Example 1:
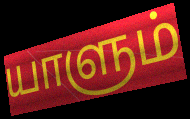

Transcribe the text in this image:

யாளும்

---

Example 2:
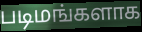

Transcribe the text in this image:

படிமங்களாக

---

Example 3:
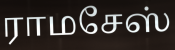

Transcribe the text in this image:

ராமசேஸ்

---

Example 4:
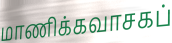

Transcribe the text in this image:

மாணிக்கவாசகப்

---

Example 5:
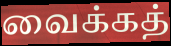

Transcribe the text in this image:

வைக்கத்